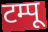
टम्पू